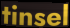
tinsel